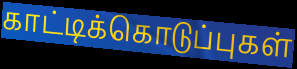
காட்டிக்கொடுப்புகள்